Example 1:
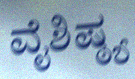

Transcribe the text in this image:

ವೈಶಿಷ್ಠ್ಯ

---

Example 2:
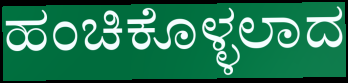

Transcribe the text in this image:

ಹಂಚಿಕೊಳ್ಳಲಾದ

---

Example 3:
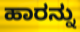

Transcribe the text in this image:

ಹಾರನ್ನು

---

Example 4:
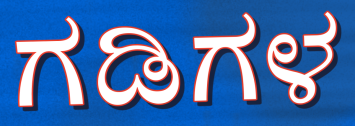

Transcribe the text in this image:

ಗಡಿಗಳ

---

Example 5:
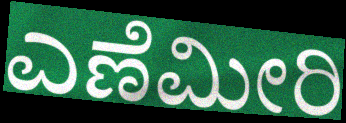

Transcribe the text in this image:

ಎಣೆಮೀರಿ